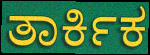
ತಾರ್ಕಿಕ